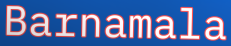
Barnamala